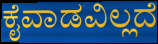
ಕೈವಾಡವಿಲ್ಲದೆ